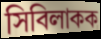
সিবিলাকক